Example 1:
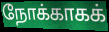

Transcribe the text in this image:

நோக்காகக்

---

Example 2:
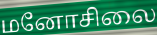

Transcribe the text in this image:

மனோசிலை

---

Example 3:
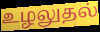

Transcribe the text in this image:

உழலுதல்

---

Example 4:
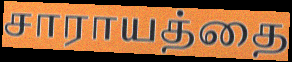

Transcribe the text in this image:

சாராயத்தை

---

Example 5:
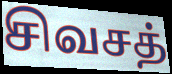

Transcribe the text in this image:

சிவசத்